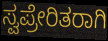
ಸ್ವಪ್ರೇರಿತರಾಗಿ